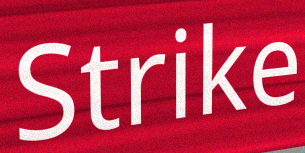
Strike